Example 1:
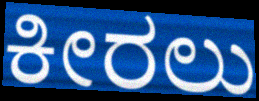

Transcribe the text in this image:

ಕೀರಲು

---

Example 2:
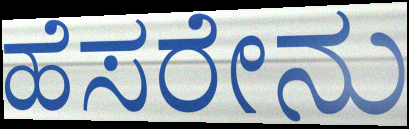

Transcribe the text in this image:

ಹೆಸರೇನು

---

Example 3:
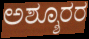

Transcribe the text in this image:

ಅಶ್ಶೂರರ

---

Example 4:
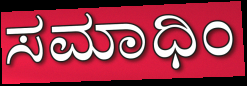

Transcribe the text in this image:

ಸಮಾಧಿಂ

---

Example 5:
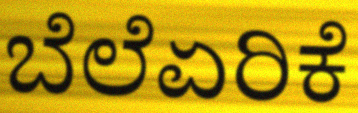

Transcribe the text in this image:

ಬೆಲೆಏರಿಕೆ